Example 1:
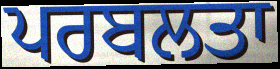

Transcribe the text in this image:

ਪਰਬਲਤਾ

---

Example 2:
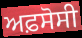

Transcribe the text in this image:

ਅਫ਼ਸੋਸੀ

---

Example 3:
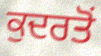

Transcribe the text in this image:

ਕੁਦਰਤੋਂ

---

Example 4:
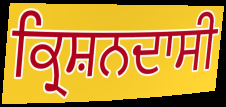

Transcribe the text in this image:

ਕ੍ਰਿਸ਼ਨਦਾਸੀ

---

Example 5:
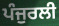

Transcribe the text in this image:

ਪੰਜੁਰਲੀ